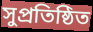
সুপ্রতিষ্ঠিত